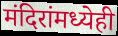
मंदिरांमध्येही